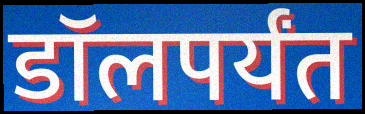
डॉलपर्यंत